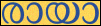
രായാ